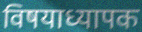
विषयाध्यापक